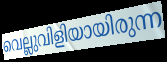
വെല്ലുവിളിയായിരുന്ന